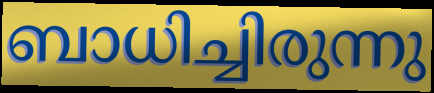
ബാധിച്ചിരുന്നു